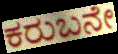
ಕರುಬನೇ